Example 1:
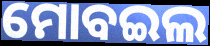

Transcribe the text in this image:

ମୋବଇଲ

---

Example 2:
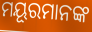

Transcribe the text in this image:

ମୟୂରମାନଙ୍କ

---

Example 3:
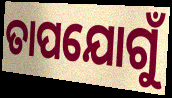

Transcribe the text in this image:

ତାପଯୋଗୁଁ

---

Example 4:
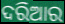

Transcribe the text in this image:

ଦରିଆର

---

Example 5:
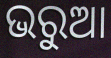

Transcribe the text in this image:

ଭରୁଆ